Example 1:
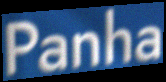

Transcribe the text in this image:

Panha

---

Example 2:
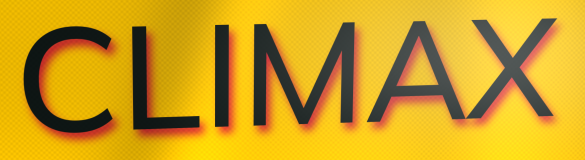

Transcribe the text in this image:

CLIMAX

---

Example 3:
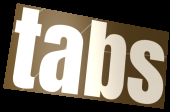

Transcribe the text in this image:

tabs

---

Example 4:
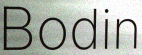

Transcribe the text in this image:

Bodin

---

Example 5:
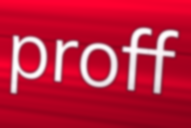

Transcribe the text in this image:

proff